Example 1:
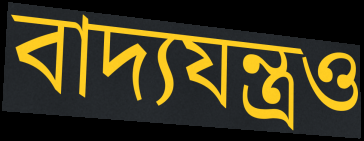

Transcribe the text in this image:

বাদ্যযন্ত্রও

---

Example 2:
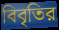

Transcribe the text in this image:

বিবৃতির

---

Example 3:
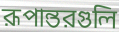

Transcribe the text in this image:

রূপান্তরগুলি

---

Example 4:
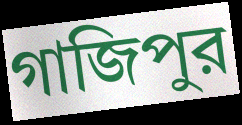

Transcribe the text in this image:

গাজিপুর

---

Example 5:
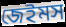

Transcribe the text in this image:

জেইমস